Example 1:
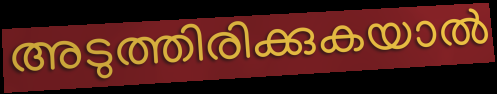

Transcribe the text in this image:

അടുത്തിരിക്കുകയാൽ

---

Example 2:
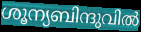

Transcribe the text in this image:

ശൂന്യബിന്ദുവിൽ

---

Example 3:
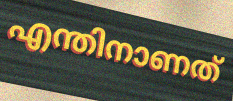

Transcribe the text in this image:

എന്തിനാണത്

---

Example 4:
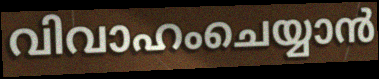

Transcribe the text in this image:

വിവാഹംചെയ്യാൻ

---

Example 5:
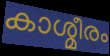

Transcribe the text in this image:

കാശ്മീരം